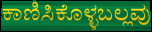
ಕಾಣಿಸಿಕೊಳ್ಳಬಲ್ಲವು